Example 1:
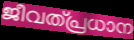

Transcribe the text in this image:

ജീവത്പ്രധാന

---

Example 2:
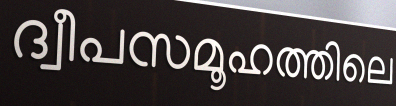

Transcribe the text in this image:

ദ്വീപസമൂഹത്തിലെ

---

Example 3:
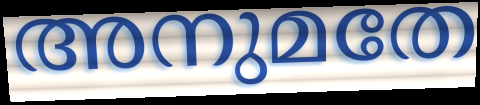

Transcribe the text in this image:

അനുമതേ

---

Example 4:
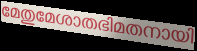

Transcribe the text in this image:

മേതുമേശാതഭിമതനായി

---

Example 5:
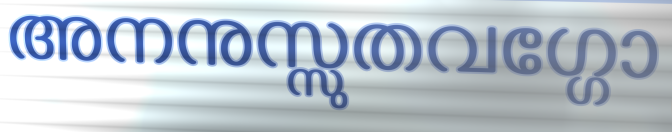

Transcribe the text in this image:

അനനുസ്സുതവഗ്ഗോ